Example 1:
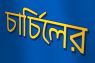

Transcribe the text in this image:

চার্চিলের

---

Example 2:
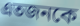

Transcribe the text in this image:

এতজনকে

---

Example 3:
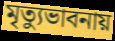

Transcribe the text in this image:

মৃত্যুভাবনায়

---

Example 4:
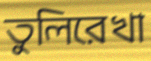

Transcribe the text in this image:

তুলিরেখা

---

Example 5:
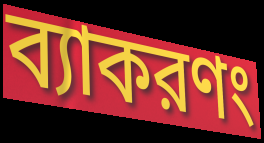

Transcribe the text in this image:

ব্যাকরণং